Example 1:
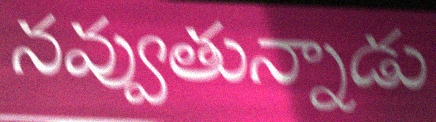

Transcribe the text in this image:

నవ్వుతున్నాడు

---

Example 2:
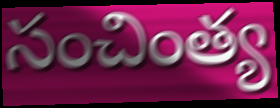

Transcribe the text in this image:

సంచింత్య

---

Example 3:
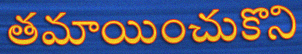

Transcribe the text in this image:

తమాయించుకొని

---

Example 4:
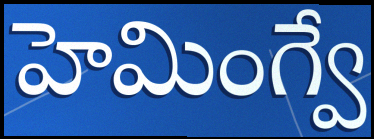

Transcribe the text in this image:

హెమింగ్వే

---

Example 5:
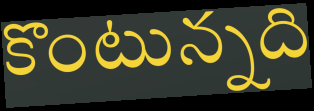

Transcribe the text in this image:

కొంటున్నది